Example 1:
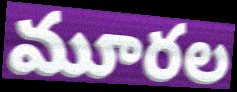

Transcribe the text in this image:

మూరల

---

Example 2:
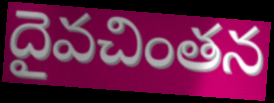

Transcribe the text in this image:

దైవచింతన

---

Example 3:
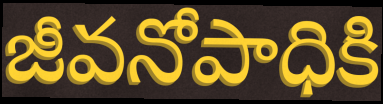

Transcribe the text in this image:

జీవనోపాధికి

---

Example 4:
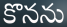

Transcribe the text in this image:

కొనను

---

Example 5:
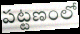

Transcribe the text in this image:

పట్టణంలో